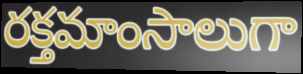
రక్తమాంసాలుగా